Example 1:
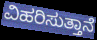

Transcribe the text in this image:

ವಿಹರಿಸುತ್ತಾನೆ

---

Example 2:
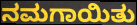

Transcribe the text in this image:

ನಮಗಾಯಿತು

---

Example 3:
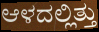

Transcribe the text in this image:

ಆಳದಲ್ಲಿತ್ತು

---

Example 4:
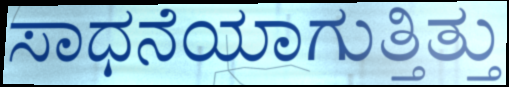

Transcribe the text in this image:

ಸಾಧನೆಯಾಗುತ್ತಿತ್ತು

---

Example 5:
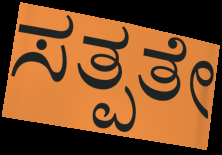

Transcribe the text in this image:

ಸತ್ಪತೇ